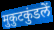
मुकुटकुंडलें